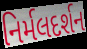
નિર્મલદર્શન